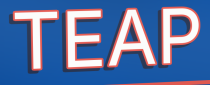
TEAP